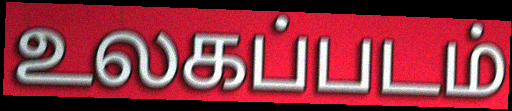
உலகப்படம்